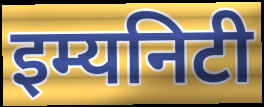
इम्यनिटी